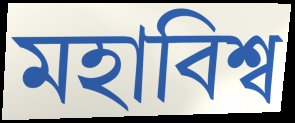
মহাবিশ্ব